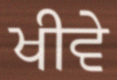
ਖੀਵੇ